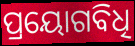
ପ୍ରୟୋଗବିଧି